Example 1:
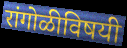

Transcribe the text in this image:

रांगोळीविषयी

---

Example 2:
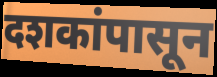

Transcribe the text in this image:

दशकांपासून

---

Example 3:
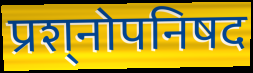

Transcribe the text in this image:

प्रश्नोपनिषद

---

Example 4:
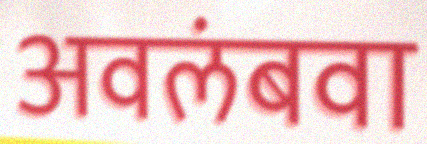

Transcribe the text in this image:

अवलंबवा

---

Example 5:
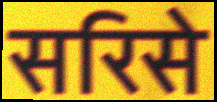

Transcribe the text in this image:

सरिसे